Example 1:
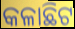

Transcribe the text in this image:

କଳାଛିଟ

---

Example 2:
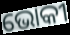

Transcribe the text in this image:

ଭୋକୀ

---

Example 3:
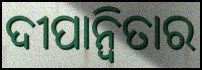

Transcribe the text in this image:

ଦୀପାନ୍ୱିତାର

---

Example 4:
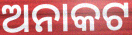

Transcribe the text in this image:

ଅନାକଟ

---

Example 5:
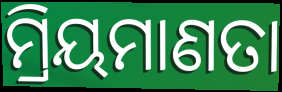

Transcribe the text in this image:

ମ୍ରିୟମାଣତା